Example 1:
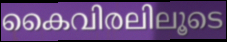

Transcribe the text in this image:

കൈവിരലിലൂടെ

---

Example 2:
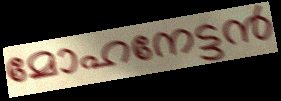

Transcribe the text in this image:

മോഹനേട്ടൻ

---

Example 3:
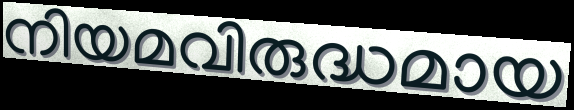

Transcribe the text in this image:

നിയമവിരുദ്ധമായ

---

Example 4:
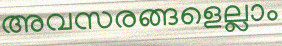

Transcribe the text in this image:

അവസരങ്ങളെല്ലാം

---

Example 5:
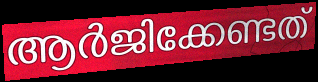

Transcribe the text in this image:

ആർജിക്കേണ്ടത്